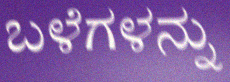
ಬಳೆಗಳನ್ನು